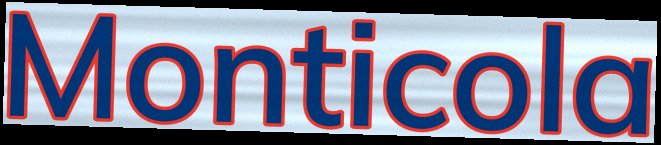
Monticola